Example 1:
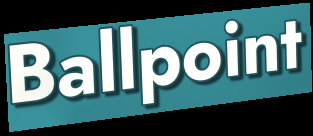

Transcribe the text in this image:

Ballpoint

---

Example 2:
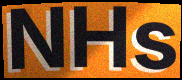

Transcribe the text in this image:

NHs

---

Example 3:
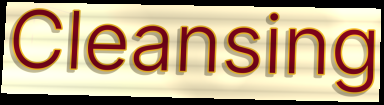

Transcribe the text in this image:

Cleansing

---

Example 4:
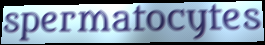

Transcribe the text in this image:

spermatocytes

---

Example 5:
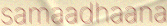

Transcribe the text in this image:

samaadhaana